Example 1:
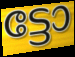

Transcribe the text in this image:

ട്ടോ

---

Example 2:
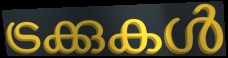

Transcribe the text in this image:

ട്രക്കുകൾ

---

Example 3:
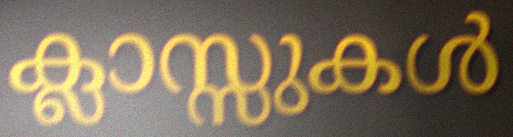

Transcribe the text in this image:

ക്ലാസ്സുകൾ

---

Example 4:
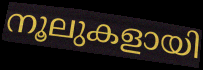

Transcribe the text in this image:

നൂലുകളായി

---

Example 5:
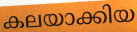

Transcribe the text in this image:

കലയാക്കിയ